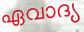
ഏവാദ്യ